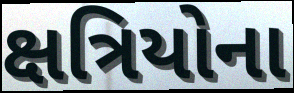
ક્ષત્રિયોના